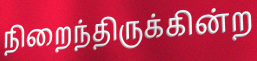
நிறைந்திருக்கின்ற